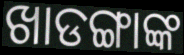
ଖାଡଙ୍ଗାଙ୍କ